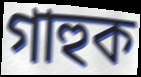
গাহুক